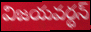
విజయవర్ధన్